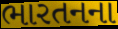
ભારતનના